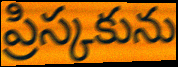
ప్రిస్కకును